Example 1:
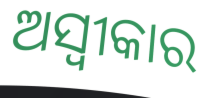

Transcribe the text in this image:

ଅସ୍ୱୀକାର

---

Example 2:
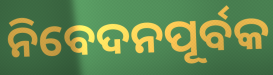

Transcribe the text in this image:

ନିବେଦନପୂର୍ବକ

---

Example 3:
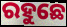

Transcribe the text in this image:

ରହୁଛେ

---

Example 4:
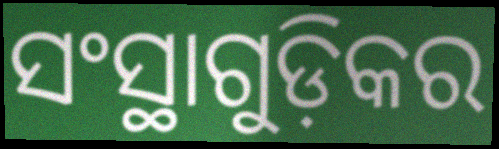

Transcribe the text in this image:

ସଂସ୍ଥାଗୁଡ଼ିକର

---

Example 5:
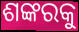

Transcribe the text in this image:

ଶଙ୍କରକୁ